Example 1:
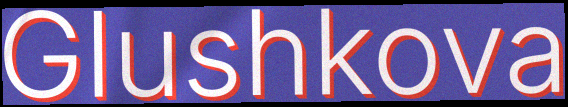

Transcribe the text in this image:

Glushkova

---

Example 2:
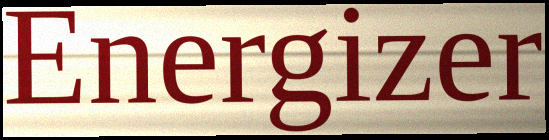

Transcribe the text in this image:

Energizer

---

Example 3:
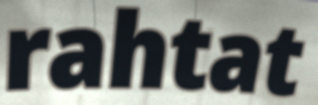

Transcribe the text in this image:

rahtat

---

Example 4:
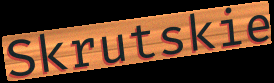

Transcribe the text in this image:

Skrutskie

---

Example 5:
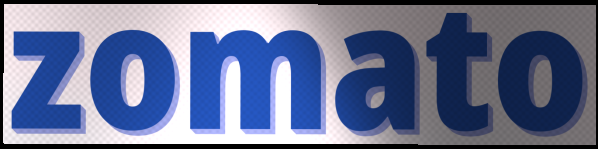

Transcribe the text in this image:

zomato